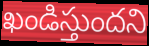
ఖండిస్తుందని